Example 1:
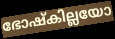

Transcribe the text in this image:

ഭോഷ്കില്ലയോ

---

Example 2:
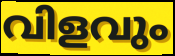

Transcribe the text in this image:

വിളവും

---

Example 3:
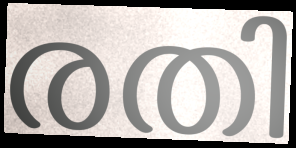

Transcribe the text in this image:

രതി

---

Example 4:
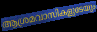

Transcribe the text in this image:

ആശ്രമവാസികളുടേയും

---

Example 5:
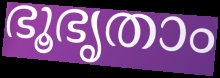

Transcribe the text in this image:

ഭൂഭൃതാം